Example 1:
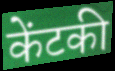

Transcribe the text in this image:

केंटकी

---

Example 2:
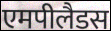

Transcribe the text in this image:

एमपीलैडस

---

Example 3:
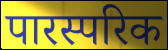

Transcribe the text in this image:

पारस्परिक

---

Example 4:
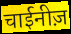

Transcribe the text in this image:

चाईनीज़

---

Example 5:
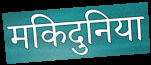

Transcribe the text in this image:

मकिदुनिया